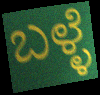
ಬಳ್ಳೆ